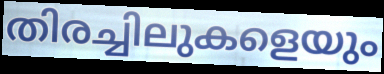
തിരച്ചിലുകളെയും